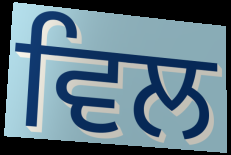
ਵਿਲ